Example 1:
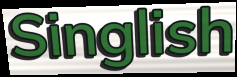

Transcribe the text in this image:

Singlish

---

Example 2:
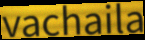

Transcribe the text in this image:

vachaila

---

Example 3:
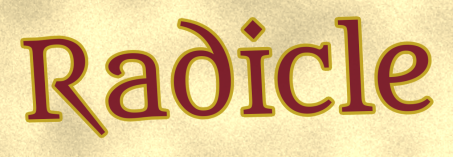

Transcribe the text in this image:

Radicle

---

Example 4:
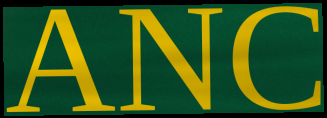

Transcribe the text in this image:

ANC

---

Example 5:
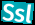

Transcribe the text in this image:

Ssl